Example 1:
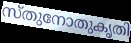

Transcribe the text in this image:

സ്തുനോതുകൃതി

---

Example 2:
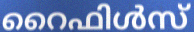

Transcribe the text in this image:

റൈഫിൾസ്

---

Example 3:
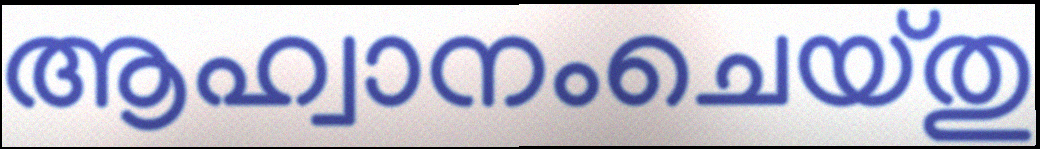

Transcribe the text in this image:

ആഹ്വാനംചെയ്തു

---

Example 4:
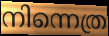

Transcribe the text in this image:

നിന്നെത്ര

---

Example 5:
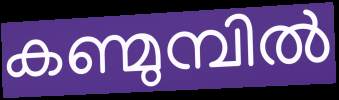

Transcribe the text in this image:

കണ്മുമ്പിൽ